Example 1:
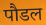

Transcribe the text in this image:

पौडल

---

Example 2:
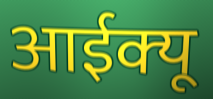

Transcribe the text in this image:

आईक्यू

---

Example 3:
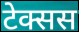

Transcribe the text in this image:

टेक्सस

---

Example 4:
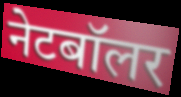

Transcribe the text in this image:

नेटबॉलर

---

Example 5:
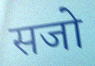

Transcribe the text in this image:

सजो